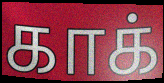
காக்